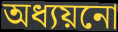
অধ্যয়নো